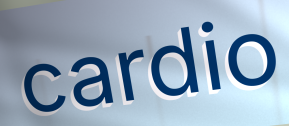
cardio